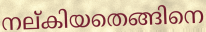
നല്കിയതെങ്ങിനെ